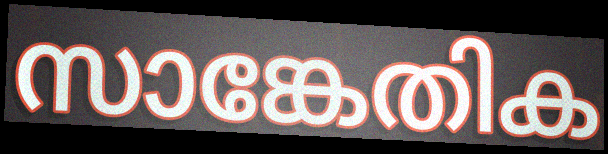
സാങ്കേതിക